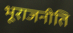
भूराजनीति